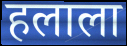
हलाला